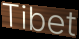
Tibet